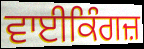
ਵਾਈਕਿੰਗਜ਼